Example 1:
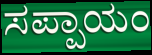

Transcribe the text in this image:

ಸಪ್ಪಾಯಂ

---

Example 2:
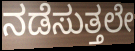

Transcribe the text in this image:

ನಡೆಸುತ್ತಲೇ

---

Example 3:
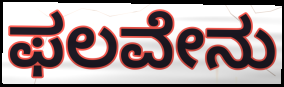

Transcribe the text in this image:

ಫಲವೇನು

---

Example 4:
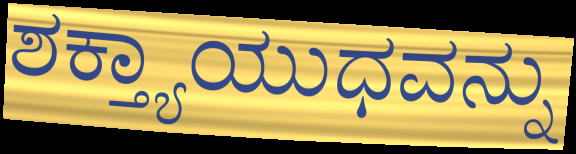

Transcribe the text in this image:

ಶಕ್ತ್ಯಾಯುಧವನ್ನು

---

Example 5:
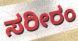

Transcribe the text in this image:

ಸರೀರಂ